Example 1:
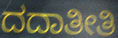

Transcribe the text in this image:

ದದಾತೀತಿ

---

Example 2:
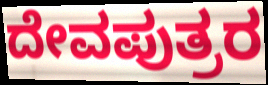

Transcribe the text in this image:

ದೇವಪುತ್ರರ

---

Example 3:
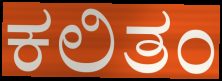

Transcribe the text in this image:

ಕಲಿತಂ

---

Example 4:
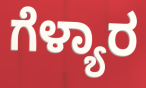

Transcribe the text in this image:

ಗೆಳ್ಯಾರ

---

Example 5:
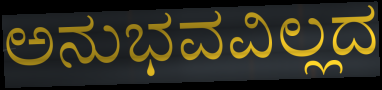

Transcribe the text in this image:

ಅನುಭವವಿಲ್ಲದ